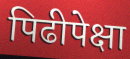
पिढीपेक्षा